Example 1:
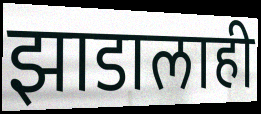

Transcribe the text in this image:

झाडालाही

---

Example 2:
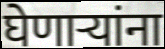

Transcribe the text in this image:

घेणाऱ्यांना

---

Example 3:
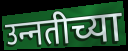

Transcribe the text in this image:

उन्नतीच्या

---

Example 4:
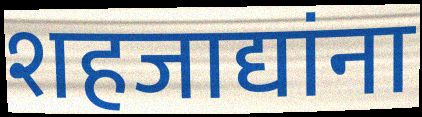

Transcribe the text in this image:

शहजाद्यांना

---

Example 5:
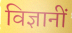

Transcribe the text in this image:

विज्ञानीं